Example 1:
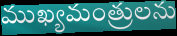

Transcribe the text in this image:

ముఖ్యమంత్రులను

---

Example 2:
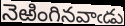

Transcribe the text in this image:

నెఱింగినవాఁడు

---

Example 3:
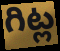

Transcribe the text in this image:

గిట్ల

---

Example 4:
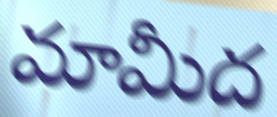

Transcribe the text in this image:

మామీద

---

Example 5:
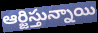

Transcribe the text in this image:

ఆర్జిస్తున్నాయి